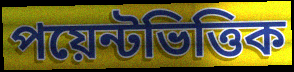
পয়েন্টভিত্তিক